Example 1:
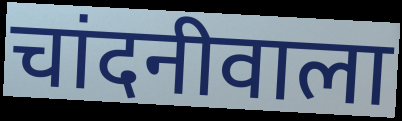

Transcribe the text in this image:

चांदनीवाला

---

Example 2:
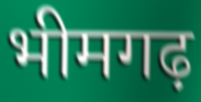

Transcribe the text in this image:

भीमगढ़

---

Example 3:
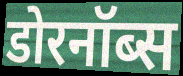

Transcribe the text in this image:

डोरनॉब्स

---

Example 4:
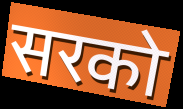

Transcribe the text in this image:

सरको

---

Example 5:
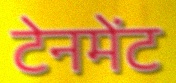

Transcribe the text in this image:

टेनमेंट